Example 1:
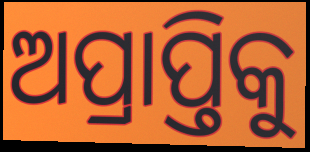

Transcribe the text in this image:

ଅପ୍ରାପ୍ତିକୁ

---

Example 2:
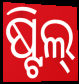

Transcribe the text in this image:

ଷ୍ଟିଲ୍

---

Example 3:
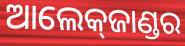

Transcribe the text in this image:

ଆଲେକ୍‌ଜାଣ୍ଡର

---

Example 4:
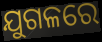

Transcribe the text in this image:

ଯୁଗଳରେ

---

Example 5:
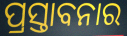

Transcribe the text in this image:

ପ୍ରସ୍ତାବନାର